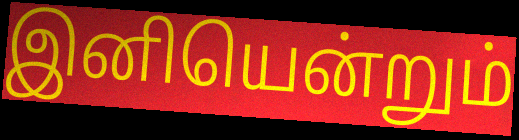
இனியென்றும்